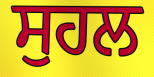
ਸੁਹਲ